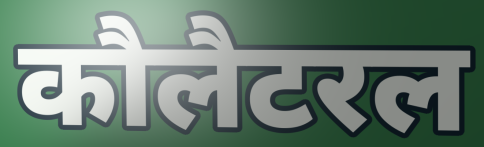
कौलैटरल